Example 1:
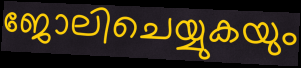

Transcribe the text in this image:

ജോലിചെയ്യുകയും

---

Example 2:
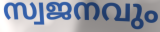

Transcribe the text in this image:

സ്വജനവും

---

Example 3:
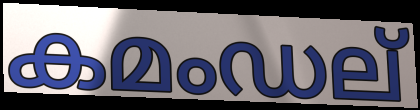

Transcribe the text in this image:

കമംഡല്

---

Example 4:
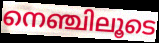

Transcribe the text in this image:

നെഞ്ചിലൂടെ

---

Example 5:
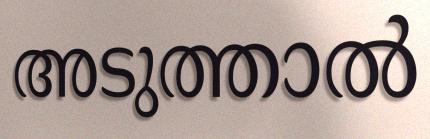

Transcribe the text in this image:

അടുത്താൽ